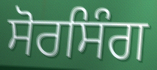
ਸੋਰਸਿੰਗ